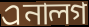
এনালগ